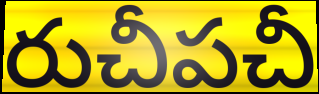
రుచీపచీ